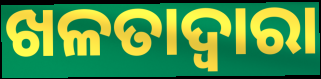
ଖଳତାଦ୍ଵାରା